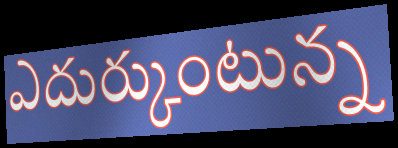
ఎదుర్కుంటున్న